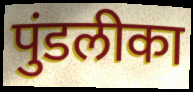
पुंडलीका